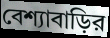
বেশ্যাবাড়ির